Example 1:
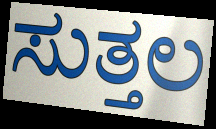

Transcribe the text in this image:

ಸುತ್ತಲ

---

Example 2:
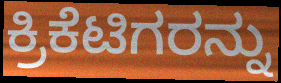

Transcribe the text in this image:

ಕ್ರಿಕೆಟಿಗರನ್ನು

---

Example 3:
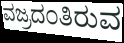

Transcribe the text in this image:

ವಜ್ರದಂತಿರುವ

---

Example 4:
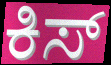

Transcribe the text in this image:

ಕಿಸ್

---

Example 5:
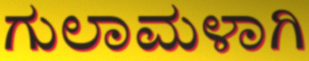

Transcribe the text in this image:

ಗುಲಾಮಳಾಗಿ